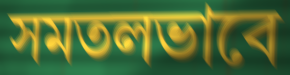
সমতলভাবে